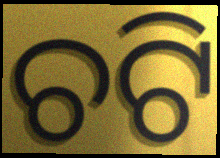
ଚଟି